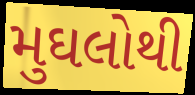
મુઘલોથી